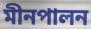
মীনপালন